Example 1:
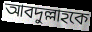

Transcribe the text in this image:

আবদুল্লাহকে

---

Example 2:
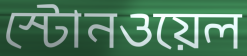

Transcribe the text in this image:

স্টোনওয়েল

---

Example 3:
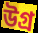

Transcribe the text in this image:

উগ্র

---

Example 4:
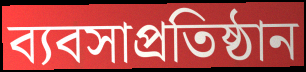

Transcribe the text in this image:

ব্যবসাপ্রতিষ্ঠান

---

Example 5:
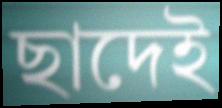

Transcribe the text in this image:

ছাদেই